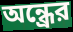
অন্ধ্রের